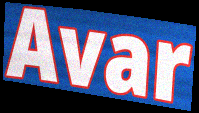
Avar